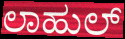
ಲಾಹುಲ್